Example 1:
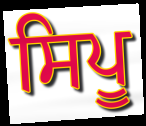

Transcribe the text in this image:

ਸਿਪੂ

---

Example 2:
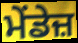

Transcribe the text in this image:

ਮੇਂਡੇਜ਼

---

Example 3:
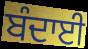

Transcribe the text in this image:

ਬੰਦਾਈ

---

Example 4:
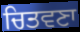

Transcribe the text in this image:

ਚਿਤਵਣਾ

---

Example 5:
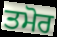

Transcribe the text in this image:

ਤਮੋਰ